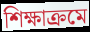
শিক্ষাক্রমে